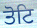
ਤੋਟਿ